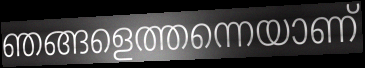
ഞങ്ങളെത്തന്നെയാണ്